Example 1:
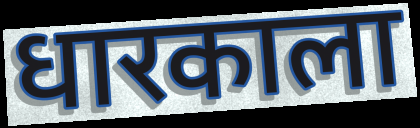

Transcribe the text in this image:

धारकाला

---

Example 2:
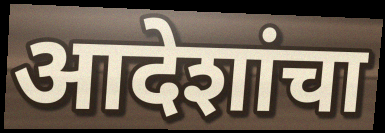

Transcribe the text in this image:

आदेशांचा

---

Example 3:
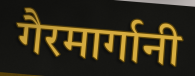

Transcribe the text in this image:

गैरमार्गानी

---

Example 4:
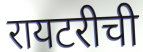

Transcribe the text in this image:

रायटरीची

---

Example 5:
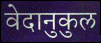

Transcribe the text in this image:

वेदानुकुल